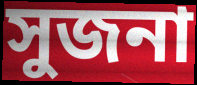
সুজনা